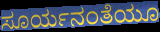
ಸೂರ್ಯನಂತೆಯೂ